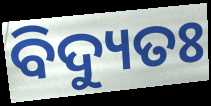
ବିଦ୍ୟୁତଃ